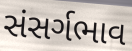
સંસર્ગભાવ